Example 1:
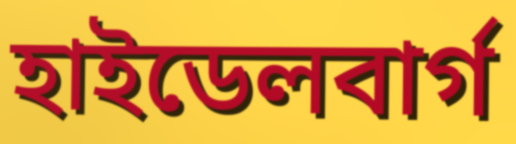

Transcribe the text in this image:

হাইডেলবার্গ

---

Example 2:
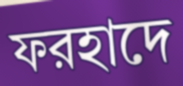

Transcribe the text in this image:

ফরহাদে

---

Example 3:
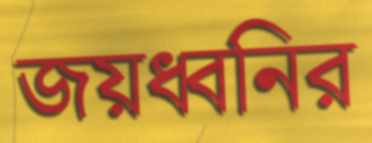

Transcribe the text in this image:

জয়ধ্বনির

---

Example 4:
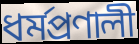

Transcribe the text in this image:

ধর্মপ্রণালী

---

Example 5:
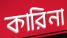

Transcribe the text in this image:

কারিনা